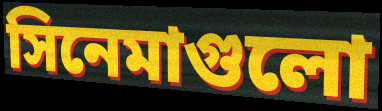
সিনেমাগুলো